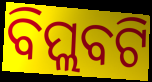
ବିପ୍ଲବଟି